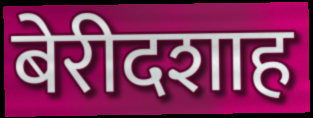
बेरीदशाह